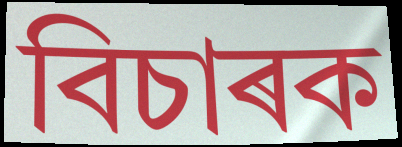
বিচাৰক